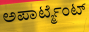
ಅಪಾರ್ಟ್ಮೆಂಟ್